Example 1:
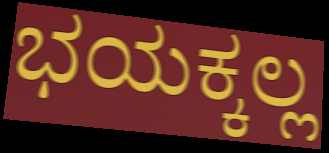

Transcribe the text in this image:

ಭಯಕ್ಕಲ್ಲ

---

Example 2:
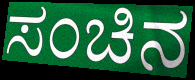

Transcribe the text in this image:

ಸಂಚಿನ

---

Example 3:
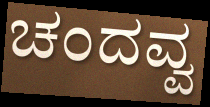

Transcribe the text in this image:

ಚಂದವ್ವ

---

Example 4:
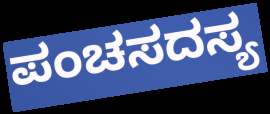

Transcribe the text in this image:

ಪಂಚಸದಸ್ಯ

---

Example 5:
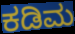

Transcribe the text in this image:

ಕಡಿಮ